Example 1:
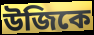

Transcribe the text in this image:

উজিকে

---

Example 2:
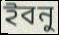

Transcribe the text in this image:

ইবনু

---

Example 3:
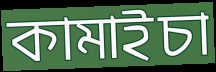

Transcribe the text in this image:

কামাইচা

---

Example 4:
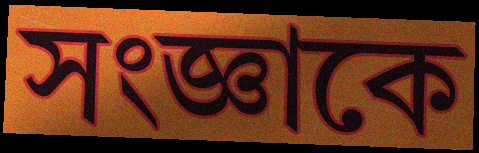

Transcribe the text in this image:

সংজ্ঞাকে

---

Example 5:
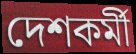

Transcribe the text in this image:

দেশকর্মী